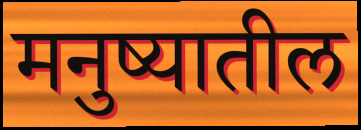
मनुष्यातील